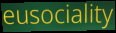
eusociality